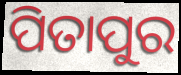
ପିତାପୁର